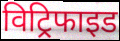
विट्रिफाइड